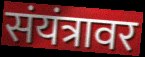
संयंत्रावर